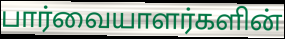
பார்வையாளர்களின்